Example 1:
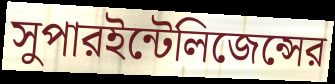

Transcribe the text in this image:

সুপারইন্টেলিজেন্সের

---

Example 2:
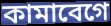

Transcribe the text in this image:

কামাবেগে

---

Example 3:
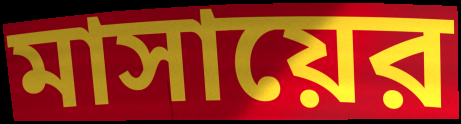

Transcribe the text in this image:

মাসায়ের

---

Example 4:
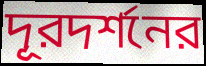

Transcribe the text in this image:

দূরদর্শনের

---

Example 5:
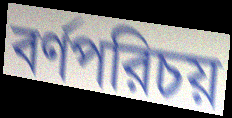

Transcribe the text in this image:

বর্ণপরিচয়